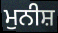
ਮੁਨੀਸ਼